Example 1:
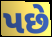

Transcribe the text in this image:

પછે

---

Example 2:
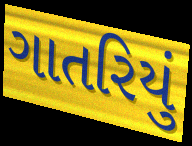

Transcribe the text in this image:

ગાતરિયું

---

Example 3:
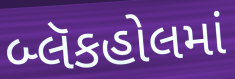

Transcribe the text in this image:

બ્લૅકહોલમાં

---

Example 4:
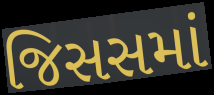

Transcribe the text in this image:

જિસસમાં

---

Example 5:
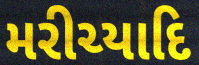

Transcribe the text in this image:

મરીચ્યાદિ